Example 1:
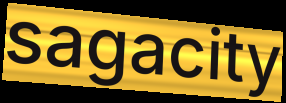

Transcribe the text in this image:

sagacity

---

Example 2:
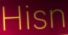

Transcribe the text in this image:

Hisn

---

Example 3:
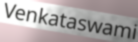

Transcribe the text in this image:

Venkataswami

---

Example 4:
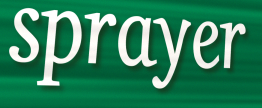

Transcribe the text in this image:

sprayer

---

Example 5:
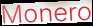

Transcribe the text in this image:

Monero